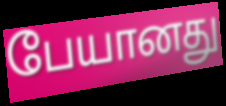
பேயானது